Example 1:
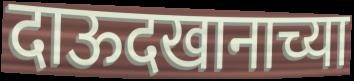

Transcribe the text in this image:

दाऊदखानाच्या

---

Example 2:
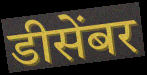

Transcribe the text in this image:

डीसेंबर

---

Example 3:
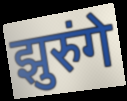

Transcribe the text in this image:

झुरुंगे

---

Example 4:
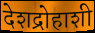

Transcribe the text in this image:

देशद्रोहाशी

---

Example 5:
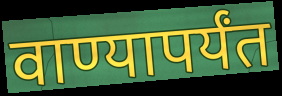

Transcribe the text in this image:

वाण्यापर्यंत